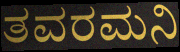
ತವರಮನಿ